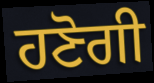
ਹਣੋਗੀ